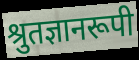
श्रुतज्ञानरूपी